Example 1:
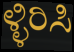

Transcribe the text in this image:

ಳ್ಳಿರಿಸಿ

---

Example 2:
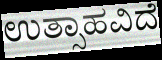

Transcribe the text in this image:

ಉತ್ಸಾಹವಿದೆ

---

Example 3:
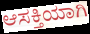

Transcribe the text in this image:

ಆಸಕ್ತಿಯಾಗಿ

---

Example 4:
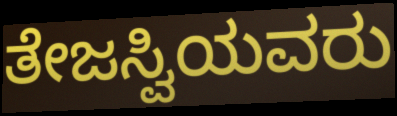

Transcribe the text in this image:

ತೇಜಸ್ವಿಯವರು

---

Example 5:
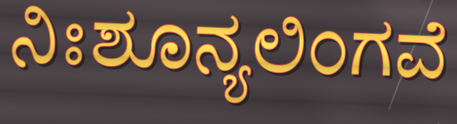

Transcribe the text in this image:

ನಿಃಶೂನ್ಯಲಿಂಗವೆ